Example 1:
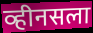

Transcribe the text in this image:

व्हीनसला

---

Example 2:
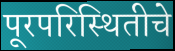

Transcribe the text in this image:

पूरपरिस्थितीचे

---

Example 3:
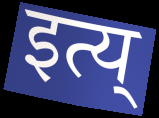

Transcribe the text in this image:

इत्य्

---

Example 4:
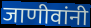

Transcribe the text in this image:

जाणीवांनी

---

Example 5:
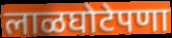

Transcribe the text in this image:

लाळघोटेपणा